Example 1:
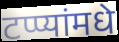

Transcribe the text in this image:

टप्प्यांमधे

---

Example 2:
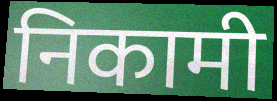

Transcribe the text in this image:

निकामी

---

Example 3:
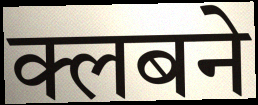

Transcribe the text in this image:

क्लबने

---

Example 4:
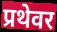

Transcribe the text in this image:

प्रथेवर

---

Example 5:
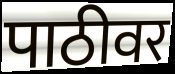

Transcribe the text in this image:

पाठीवर